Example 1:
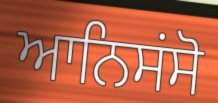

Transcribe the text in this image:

ਆਨਿਸਂਸੋ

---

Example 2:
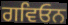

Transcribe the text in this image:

ਗਵਿਓਨ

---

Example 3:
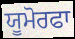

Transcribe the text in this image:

ਯੂਮੋਰਫਾ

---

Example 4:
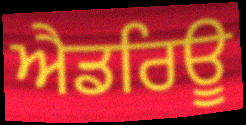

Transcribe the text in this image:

ਐਡਰਿਊ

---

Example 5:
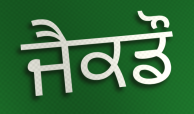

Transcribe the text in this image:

ਜੈਕਡੌ